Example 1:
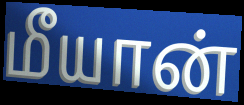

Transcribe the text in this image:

மீயான்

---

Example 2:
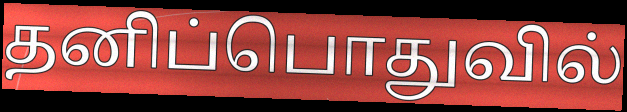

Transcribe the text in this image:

தனிப்பொதுவில்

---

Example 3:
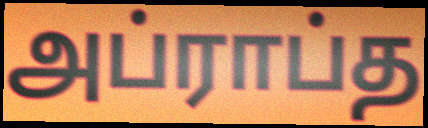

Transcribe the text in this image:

அப்ராப்த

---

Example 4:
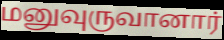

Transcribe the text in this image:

மனுவுருவானார்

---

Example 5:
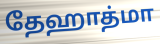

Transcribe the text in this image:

தேஹாத்மா